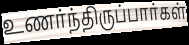
உணர்ந்திருப்பார்கள்